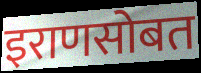
इराणसोबत